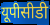
यूपीसीडी